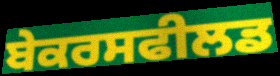
ਬੇਕਰਸਫੀਲਡ